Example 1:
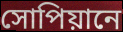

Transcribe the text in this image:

সোপিয়ানে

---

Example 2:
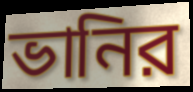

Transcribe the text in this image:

ভানির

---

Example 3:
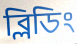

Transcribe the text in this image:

ব্লিডিং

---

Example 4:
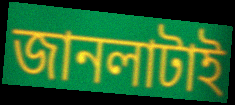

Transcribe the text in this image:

জানলাটাই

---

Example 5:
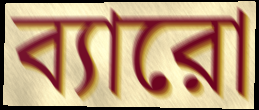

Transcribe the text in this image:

ব্যারো